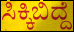
ಸಿಕ್ಕಿಬಿದ್ದೆ